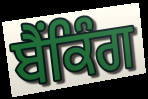
ਬੈਂਕਿੰਗ